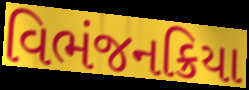
વિભંજનક્રિયા